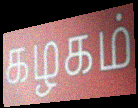
கழகம்